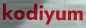
kodiyum